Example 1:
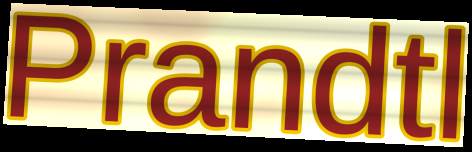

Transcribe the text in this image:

Prandtl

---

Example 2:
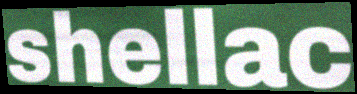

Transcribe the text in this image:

shellac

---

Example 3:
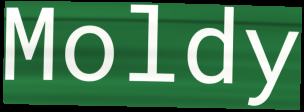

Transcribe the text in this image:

Moldy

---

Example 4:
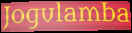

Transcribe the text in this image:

Jogulamba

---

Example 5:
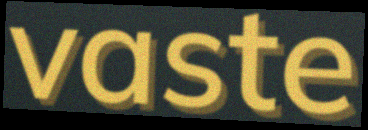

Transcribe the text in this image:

vaste